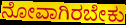
ನೋವಾಗಿರಬೇಕು